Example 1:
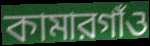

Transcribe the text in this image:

কামারগাঁও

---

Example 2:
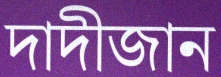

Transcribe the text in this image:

দাদীজান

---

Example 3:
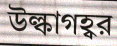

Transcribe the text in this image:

উল্কাগহ্বর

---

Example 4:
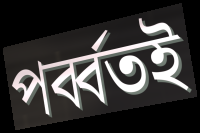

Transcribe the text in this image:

পর্ব্বতই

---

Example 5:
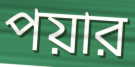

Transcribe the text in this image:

পয়ার